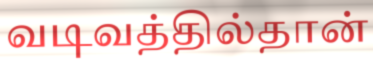
வடிவத்தில்தான்